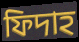
ফিদাহ